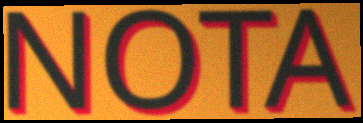
NOTA